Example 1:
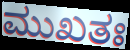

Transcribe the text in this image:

ಮುಖತಃ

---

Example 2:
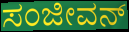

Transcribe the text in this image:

ಸಂಜೀವನ್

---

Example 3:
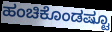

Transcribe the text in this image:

ಹಂಚಿಕೊಂಡಷ್ಟೂ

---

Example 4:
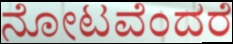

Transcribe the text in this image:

ನೋಟವೆಂದರೆ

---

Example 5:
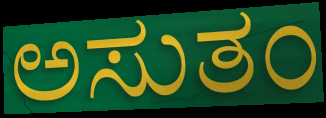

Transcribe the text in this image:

ಅಸುತಂ